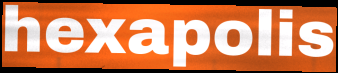
hexapolis